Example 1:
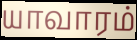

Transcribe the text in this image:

யாவாரம்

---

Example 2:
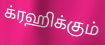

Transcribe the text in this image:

க்ரஹிக்கும்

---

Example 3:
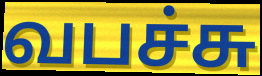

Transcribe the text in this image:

வபச்சு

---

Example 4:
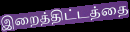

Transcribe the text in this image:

இறைத்திட்டத்தை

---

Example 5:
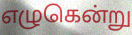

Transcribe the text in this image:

எழுகென்று